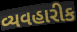
વ્યવહારીક